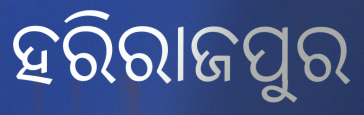
ହରିରାଜପୁର